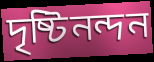
দৃষ্টিনন্দন